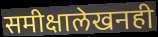
समीक्षालेखनही